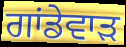
ਗਾਂਡੇਵਾੜ